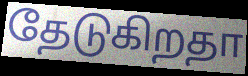
தேடுகிறதா